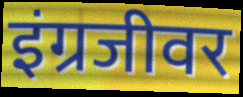
इंग्रजीवर